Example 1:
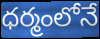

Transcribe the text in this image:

ధర్మంలోనే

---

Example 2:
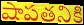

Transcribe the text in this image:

షాపతనికి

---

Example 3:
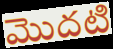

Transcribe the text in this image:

మొదటి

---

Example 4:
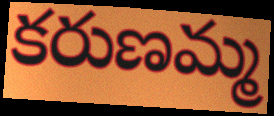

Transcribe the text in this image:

కరుణమ్మ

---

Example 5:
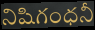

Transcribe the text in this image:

నిషిగంధనీ